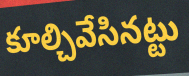
కూల్చివేసినట్టు